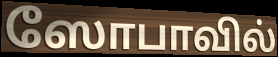
ஸோபாவில்